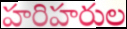
హరిహరుల